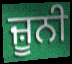
ਜ਼ੂਨੀ